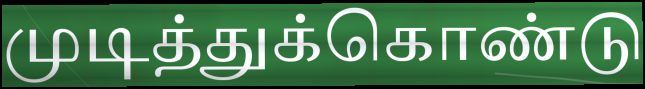
முடித்துக்கொண்டு